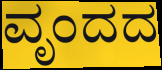
ವೃಂದದ